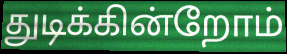
துடிக்கின்றோம்